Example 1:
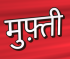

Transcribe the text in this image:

मुफ़्ती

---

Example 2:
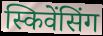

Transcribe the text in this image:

स्किवेंसिंग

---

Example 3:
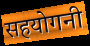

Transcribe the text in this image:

सहयोगनी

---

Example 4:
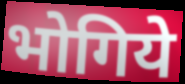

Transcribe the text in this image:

भोगिये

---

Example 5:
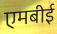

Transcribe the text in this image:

एमबीई